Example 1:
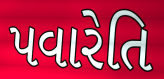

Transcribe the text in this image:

પવારેતિ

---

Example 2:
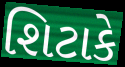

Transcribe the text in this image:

શિટાકે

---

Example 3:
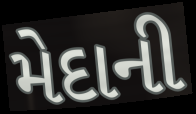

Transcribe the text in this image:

મેદાની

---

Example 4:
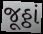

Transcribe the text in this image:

જૂઠ્ઠાં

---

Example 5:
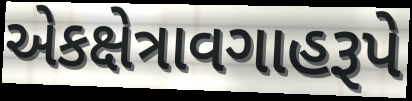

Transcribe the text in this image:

એકક્ષેત્રાવગાહરૂપે